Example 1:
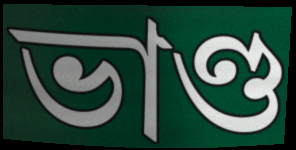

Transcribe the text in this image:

ভাণ্ড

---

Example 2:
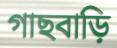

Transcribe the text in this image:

গাছবাড়ি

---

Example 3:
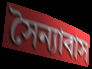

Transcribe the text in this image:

সৈন্যাবাস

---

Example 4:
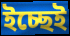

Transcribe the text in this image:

ইচ্ছেই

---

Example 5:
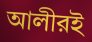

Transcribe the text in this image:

আলীরই